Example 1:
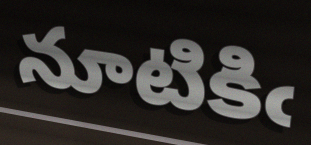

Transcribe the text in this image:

నూటికిఁ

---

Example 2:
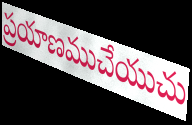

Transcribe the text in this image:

ప్రయాణముచేయుచు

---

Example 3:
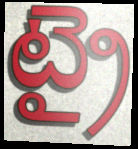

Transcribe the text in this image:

ట్రై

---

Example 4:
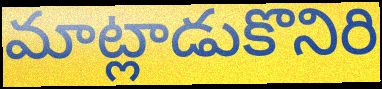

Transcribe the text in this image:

మాట్లాడుకొనిరి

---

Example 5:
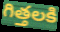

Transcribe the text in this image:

గిత్తలకి